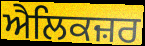
ਐਲਿਕਜ਼ਰ